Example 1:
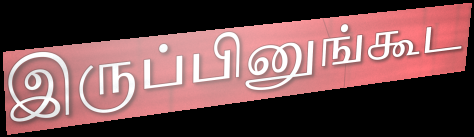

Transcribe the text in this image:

இருப்பினுங்கூட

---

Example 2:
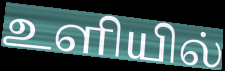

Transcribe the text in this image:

உளியில்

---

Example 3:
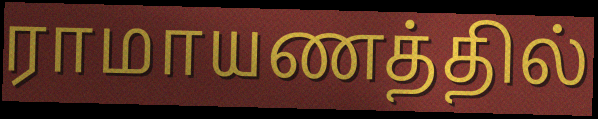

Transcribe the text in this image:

ராமாயணத்தில்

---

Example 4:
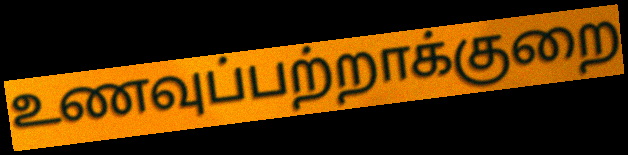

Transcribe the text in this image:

உணவுப்பற்றாக்குறை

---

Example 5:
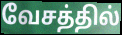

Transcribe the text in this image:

வேசத்தில்